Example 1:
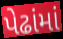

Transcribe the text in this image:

પેઢાંમાં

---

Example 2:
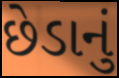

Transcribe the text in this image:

છેડાનું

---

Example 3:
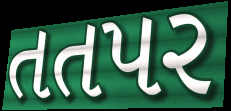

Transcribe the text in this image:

તતપર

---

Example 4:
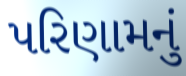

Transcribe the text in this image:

પરિણામનું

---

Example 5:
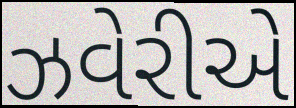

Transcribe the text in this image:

ઝવેરીએ